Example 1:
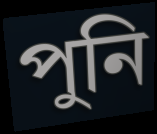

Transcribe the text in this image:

পুনি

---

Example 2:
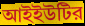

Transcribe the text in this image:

আইইউটির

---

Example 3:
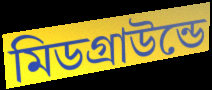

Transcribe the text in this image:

মিডগ্রাউন্ডে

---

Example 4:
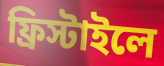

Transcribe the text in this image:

ফ্রিস্টাইলে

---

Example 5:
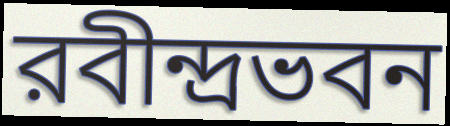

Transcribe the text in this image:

রবীন্দ্রভবন